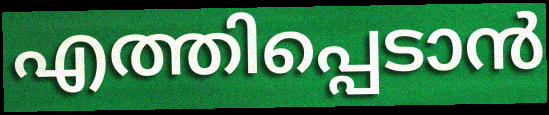
എത്തിപ്പെടാൻ